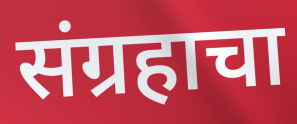
संग्रहाचा